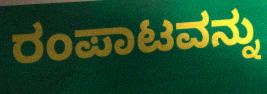
ರಂಪಾಟವನ್ನು